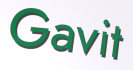
Gavit